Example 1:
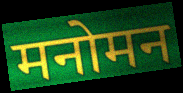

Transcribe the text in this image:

मनोमन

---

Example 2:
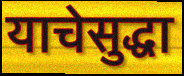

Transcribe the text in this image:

याचेसुद्धा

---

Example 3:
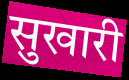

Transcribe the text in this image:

सुखारी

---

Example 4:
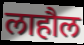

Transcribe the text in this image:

लाहौल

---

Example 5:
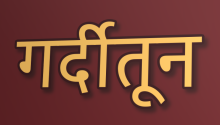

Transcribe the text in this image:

गर्दीतून